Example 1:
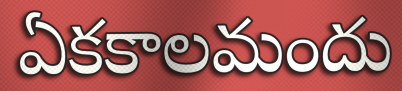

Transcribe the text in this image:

ఏకకాలమందు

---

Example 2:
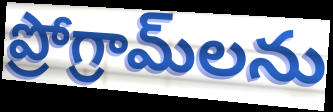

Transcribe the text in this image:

ప్రోగ్రామ్‌లను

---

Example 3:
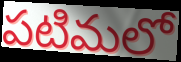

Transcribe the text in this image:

పటిమలో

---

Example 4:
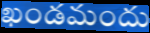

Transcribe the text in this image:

ఖండమందు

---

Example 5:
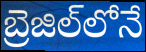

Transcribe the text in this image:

బ్రెజిల్‌లోనే